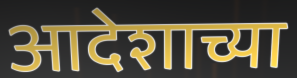
आदेशाच्या